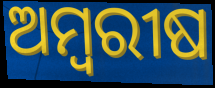
ଅମ୍ବରୀଷ